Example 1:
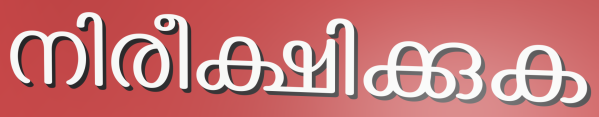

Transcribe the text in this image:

നിരീക്ഷിക്കുക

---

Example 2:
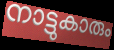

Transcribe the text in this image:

നാട്ടുകാരും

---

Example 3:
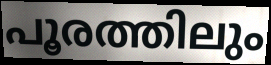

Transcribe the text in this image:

പൂരത്തിലും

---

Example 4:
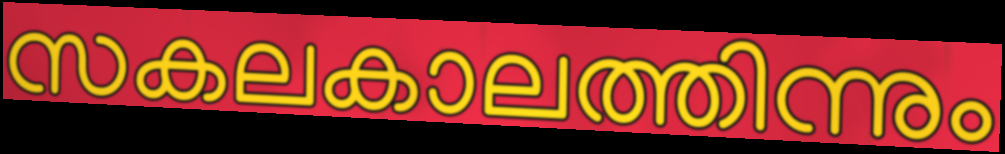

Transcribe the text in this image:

സകലകാലത്തിന്നും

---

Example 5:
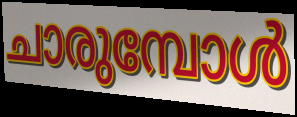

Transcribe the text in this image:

ചാരുമ്പോൾ